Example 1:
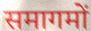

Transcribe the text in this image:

समागमों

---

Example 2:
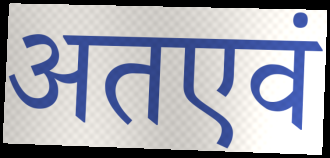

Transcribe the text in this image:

अतएवं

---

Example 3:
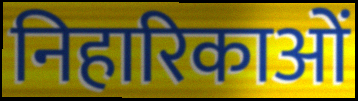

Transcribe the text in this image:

निहारिकाओं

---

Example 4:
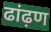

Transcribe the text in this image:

ढांढ़ण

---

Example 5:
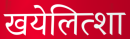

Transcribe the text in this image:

खयेलित्शा